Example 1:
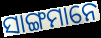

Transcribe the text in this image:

ସାଙ୍ଗମାନେ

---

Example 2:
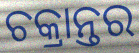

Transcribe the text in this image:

ଚକ୍ରାନ୍ତର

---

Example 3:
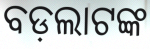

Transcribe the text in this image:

ବଡ଼ଲାଟଙ୍କ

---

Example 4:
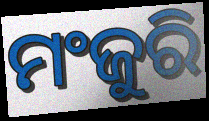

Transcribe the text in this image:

ମଂଜୁରି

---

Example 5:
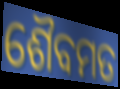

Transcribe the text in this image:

ଶୈବମତ